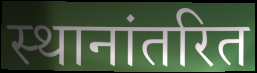
स्थानांतरित